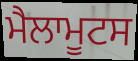
ਮੈਲਾਮੂਟਸ